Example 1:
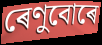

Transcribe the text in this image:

ৰেণুবোৰে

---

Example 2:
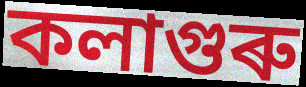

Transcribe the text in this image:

কলাগুৰু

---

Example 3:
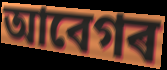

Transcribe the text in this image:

আবেগৰ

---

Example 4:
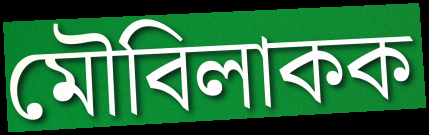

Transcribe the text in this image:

মৌবিলাকক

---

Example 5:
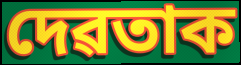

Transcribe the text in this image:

দেৱতাক